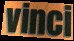
vinci